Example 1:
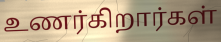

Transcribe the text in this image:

உணர்கிறார்கள்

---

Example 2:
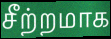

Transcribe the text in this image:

சீற்றமாக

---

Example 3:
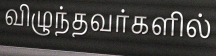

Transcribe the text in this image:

விழுந்தவர்களில்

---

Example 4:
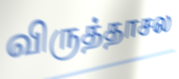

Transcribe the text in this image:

விருத்தாசல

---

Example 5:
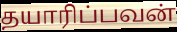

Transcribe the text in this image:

தயாரிப்பவன்